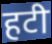
हटी